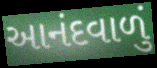
આનંદવાળું